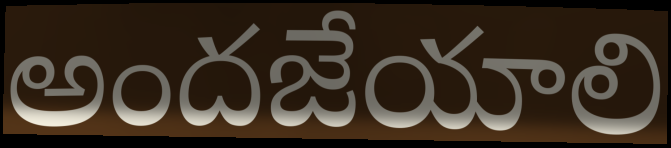
అందజేయాలి